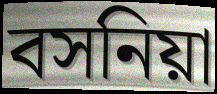
বসনিয়া